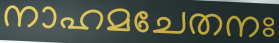
നാഹമചേതനഃ